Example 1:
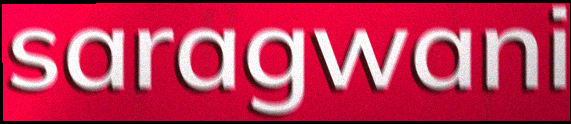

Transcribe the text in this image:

saragwani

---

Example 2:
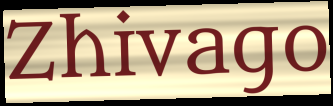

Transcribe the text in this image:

Zhivago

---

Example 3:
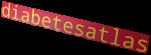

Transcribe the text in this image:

diabetesatlas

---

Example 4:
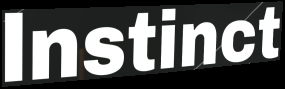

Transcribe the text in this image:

lnstinct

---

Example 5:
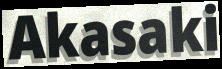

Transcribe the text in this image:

Akasaki